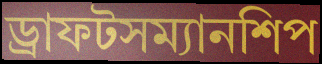
ড্রাফটসম্যানশিপ